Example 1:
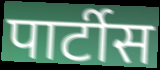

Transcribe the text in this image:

पार्टीस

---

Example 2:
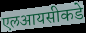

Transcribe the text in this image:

एलआयसीकडे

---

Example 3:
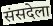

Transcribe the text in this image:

संसदेला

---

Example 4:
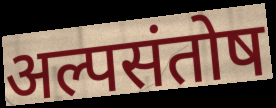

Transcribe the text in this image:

अल्पसंतोष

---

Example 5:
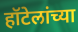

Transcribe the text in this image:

हॉटेलांच्या